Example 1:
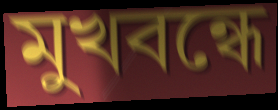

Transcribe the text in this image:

মুখবন্ধে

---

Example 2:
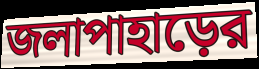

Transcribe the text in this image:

জলাপাহাড়ের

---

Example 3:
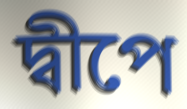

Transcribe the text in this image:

দ্বীপে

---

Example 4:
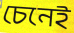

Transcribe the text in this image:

চেনেই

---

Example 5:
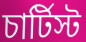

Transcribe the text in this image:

চার্টিস্ট